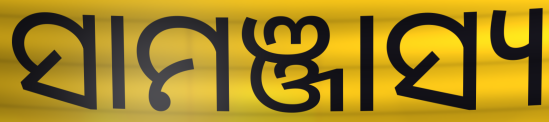
ସାମଞ୍ଜାସ୍ୟ